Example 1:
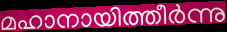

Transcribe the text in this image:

മഹാനായിത്തീർന്നു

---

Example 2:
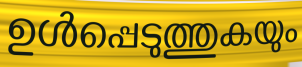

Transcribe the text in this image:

ഉൾപ്പെടുത്തുകയും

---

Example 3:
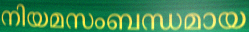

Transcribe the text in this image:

നിയമസംബന്ധമായ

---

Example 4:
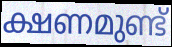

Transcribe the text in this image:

ക്ഷണമുണ്ട്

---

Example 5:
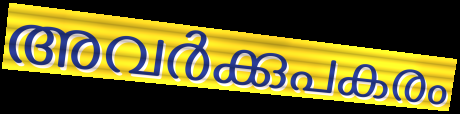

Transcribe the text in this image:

അവർക്കുപകരം